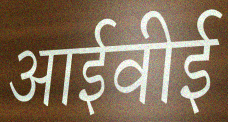
आईवीई